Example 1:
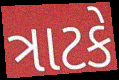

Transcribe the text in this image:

ત્રાટકે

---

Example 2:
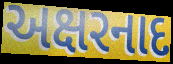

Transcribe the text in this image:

અક્ષરનાદ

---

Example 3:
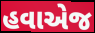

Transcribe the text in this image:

હવાએજ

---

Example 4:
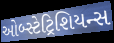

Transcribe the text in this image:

ઓબ્સ્ટેટ્રિશિયન્સ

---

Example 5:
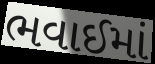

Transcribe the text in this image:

ભવાઈમાં